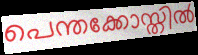
പെന്തക്കോസ്തിൽ